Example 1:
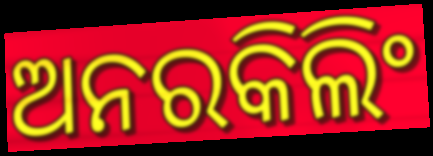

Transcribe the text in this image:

ଅନରକିଲିଂ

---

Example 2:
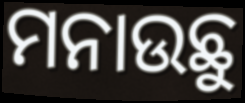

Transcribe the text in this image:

ମନାଉଛୁ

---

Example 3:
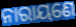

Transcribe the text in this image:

ନାରାୟଣେ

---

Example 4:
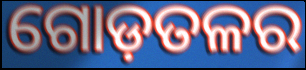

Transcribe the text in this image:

ଗୋଡ଼ତଳର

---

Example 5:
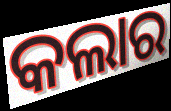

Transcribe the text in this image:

କଲାର